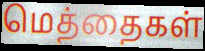
மெத்தைகள்